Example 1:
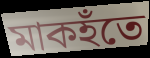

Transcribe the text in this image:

মাকহঁতে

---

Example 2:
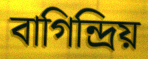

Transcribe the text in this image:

বাগিন্দ্ৰিয়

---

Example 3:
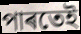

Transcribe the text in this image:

পাৰতেই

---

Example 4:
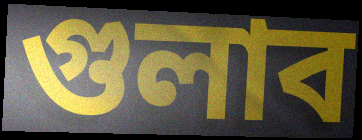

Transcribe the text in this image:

গুলাব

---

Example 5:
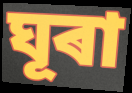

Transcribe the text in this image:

ঘূৰা